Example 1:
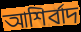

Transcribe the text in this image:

আশির্বাদ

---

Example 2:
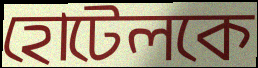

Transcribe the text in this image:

হোটেলকে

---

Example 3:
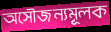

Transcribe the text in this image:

অসৌজন্যমূলক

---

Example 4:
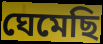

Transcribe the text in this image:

ঘেমেছি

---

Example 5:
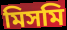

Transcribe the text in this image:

মিসমি